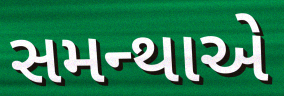
સમન્થાએ